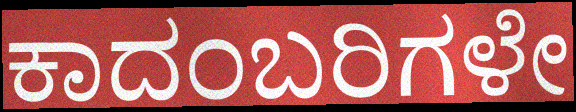
ಕಾದಂಬರಿಗಳೇ